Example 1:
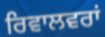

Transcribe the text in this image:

ਰਿਵਾਲਵਰਾਂ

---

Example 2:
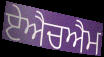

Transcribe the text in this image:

ਏਐਚਐਮ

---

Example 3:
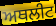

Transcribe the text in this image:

ਅਥਲੀਟ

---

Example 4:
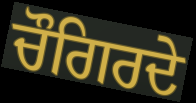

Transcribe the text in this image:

ਚੌਗਿਰਦੇ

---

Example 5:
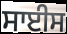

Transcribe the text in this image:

ਸਾਈਸ